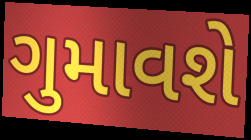
ગુમાવશે